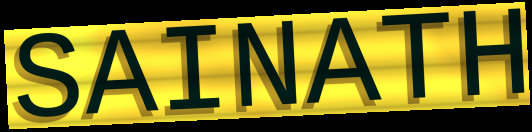
SAINATH